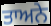
ਤਾਅਨੇ